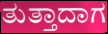
ತುತ್ತಾದಾಗ